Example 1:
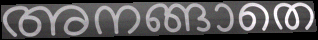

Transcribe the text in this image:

അനങ്ങാതെ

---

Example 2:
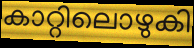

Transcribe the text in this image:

കാറ്റിലൊഴുകി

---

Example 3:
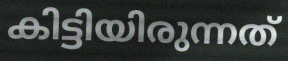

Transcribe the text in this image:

കിട്ടിയിരുന്നത്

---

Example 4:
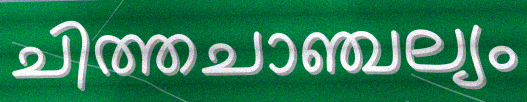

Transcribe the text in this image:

ചിത്തചാഞ്ചല്യം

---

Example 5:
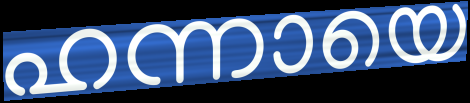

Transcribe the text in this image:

ഹന്നായെ